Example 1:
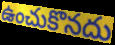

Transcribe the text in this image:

ఉంచుకొనదు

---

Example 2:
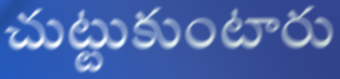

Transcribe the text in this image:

చుట్టుకుంటారు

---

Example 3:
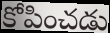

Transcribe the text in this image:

కోపించడు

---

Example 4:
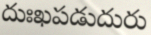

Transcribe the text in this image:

దుఃఖపడుదురు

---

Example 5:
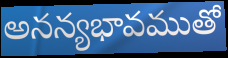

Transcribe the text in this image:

అనన్యభావముతో